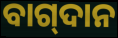
ବାଗ୍‍ଦାନ